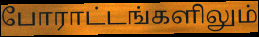
போராட்டங்களிலும்